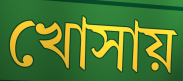
খোসায়